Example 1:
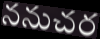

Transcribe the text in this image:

ననుచర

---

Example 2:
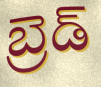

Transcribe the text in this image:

బ్రెడ్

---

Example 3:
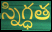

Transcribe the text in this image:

స్నిగ్ధత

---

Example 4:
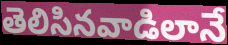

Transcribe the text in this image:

తెలిసినవాడిలానే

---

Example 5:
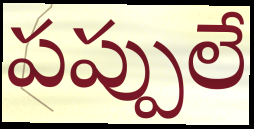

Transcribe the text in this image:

పప్పులే